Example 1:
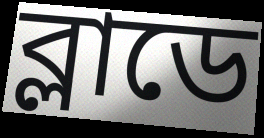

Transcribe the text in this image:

ব্লাডে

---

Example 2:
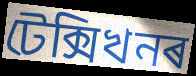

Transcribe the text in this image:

টেক্সিখনৰ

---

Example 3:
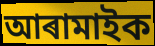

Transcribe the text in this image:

আৰামাইক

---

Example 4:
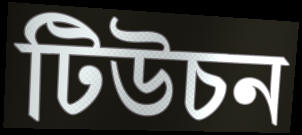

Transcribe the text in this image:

টিউচন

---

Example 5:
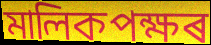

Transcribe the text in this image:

মালিকপক্ষৰ